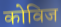
कोविज